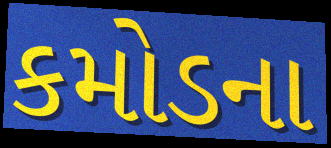
કમોડના